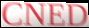
CNED